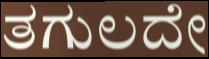
ತಗುಲದೇ